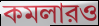
কমলারও